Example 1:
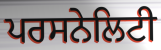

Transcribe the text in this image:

ਪਰਸਨੇਲਿਟੀ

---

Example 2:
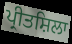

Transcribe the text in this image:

ਪ੍ਰੀਤਸ਼ਿਲਾ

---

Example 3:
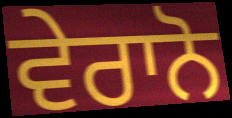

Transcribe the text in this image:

ਵੇਰਾਨੋ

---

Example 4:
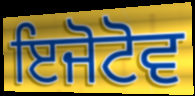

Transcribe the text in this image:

ਇਜੋਟੋਵ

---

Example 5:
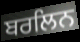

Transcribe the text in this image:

ਬਰਲਿਨ